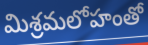
మిశ్రమలోహంతో